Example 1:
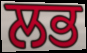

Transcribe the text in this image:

ਲਭ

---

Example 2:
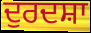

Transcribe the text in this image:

ਦੁਰਦਸ਼ਾ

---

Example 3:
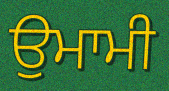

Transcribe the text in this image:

ਉਮਾਮੀ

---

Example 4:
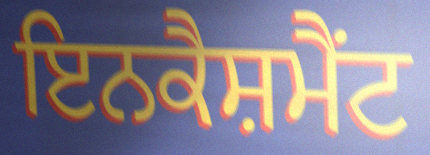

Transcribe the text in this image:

ਇਨਕੈਸ਼ਮੈਂਟ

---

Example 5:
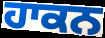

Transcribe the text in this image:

ਹਾਕਨ